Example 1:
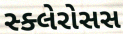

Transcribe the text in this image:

સ્ક્લેરોસસ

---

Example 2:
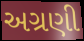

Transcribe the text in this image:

અગ્રણી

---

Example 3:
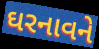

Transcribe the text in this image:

ઘરનાવને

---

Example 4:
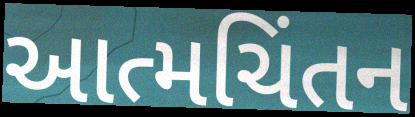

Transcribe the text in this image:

આત્મચિંતન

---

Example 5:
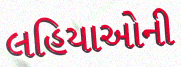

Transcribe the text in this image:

લહિયાઓની